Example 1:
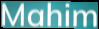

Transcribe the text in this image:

Mahim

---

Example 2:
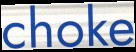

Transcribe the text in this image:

choke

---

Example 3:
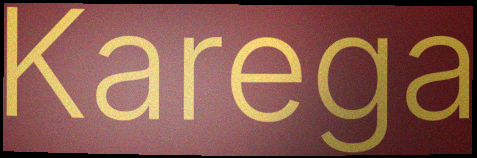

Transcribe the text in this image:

Karega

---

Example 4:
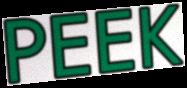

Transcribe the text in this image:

PEEK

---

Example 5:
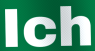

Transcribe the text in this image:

Ich